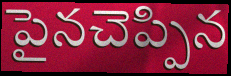
పైనచెప్పిన